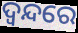
ଦ୍ୱନ୍ଦରେ